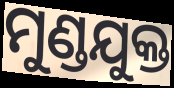
ମୁଣ୍ଡଯୁକ୍ତ